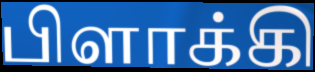
பிளாக்கி